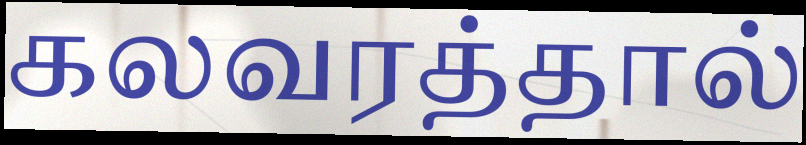
கலவரத்தால்